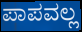
ಪಾಪವಲ್ಲ